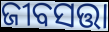
ଜୀବସତ୍ତା